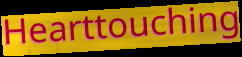
Hearttouching